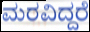
ಮರವಿದ್ದರೆ